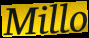
Millo